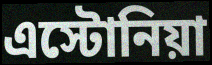
এস্টোনিয়া